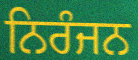
ਨਿਰੰਜਨ